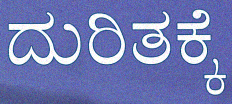
ದುರಿತಕ್ಕೆ